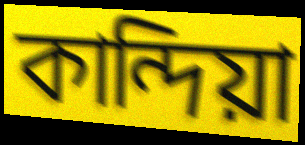
কান্দিয়া